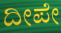
ದೀಪೇ